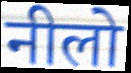
नीलो